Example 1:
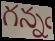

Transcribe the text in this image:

గన్నఁ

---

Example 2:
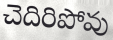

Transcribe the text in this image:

చెదిరిపోవు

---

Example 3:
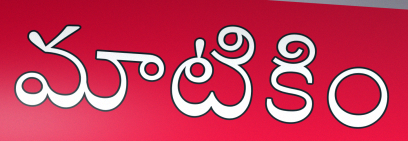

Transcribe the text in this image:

మాటికిం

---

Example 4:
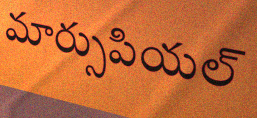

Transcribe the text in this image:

మార్సుపియల్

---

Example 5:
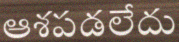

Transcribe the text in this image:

ఆశపడలేదు